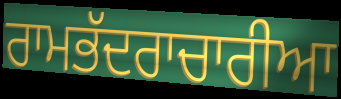
ਰਾਮਭੱਦਰਾਚਾਰੀਆ